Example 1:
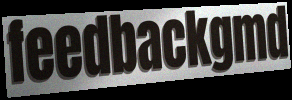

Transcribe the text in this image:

feedbackgmd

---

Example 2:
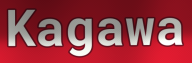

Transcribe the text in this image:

Kagawa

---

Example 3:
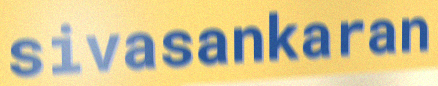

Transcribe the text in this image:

sivasankaran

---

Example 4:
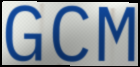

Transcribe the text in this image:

GCM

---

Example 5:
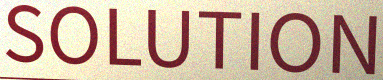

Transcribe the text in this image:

SOLUTION